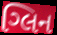
ગ્લિન